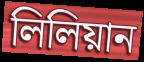
লিলিয়ান